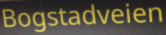
Bogstadveien